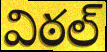
విఠల్